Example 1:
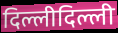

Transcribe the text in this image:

दिल्लीदिल्ली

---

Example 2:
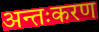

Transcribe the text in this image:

अन्तःकरण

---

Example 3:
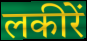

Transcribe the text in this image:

लकीरें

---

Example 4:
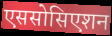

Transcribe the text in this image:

एससोसिएशन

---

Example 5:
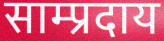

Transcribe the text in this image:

साम्प्रदाय